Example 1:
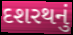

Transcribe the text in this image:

દશરથનું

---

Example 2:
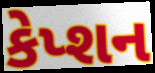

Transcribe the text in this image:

કેપ્શન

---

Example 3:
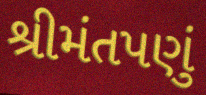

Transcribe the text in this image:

શ્રીમંતપણું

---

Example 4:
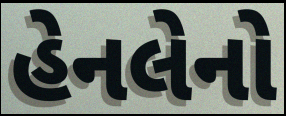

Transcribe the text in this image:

હેનલેનો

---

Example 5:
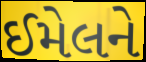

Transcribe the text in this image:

ઈમેલને